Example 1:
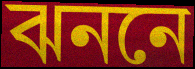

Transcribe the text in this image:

ঝননে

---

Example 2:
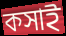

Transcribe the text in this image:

কসাই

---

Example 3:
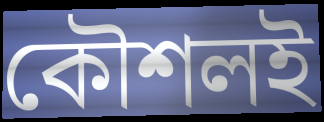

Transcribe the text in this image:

কৌশলই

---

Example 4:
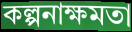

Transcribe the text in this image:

কল্পনাক্ষমতা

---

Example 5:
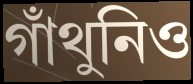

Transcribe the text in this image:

গাঁথুনিও